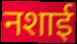
नशाई